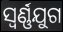
ସ୍ଵର୍ଣ୍ଣଯୁଗ